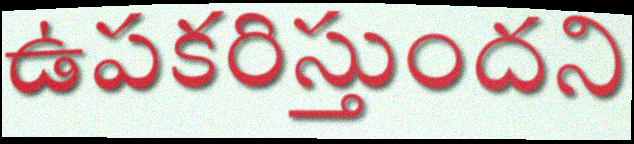
ఉపకరిస్తుందని